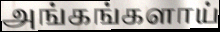
அங்கங்களாய்